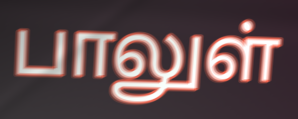
பாலுள்